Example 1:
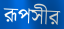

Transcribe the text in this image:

রূপসীর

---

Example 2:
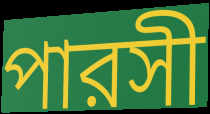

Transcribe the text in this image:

পারসী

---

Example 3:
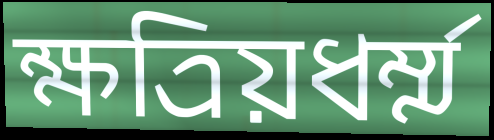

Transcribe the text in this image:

ক্ষত্রিয়ধর্ম্ম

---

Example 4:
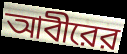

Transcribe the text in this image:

আবীরের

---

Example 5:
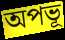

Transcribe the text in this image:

অপভূ